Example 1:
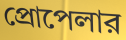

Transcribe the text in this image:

প্রোপেলার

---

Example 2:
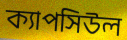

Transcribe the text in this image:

ক্যাপসিউল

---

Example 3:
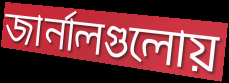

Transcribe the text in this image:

জার্নালগুলোয়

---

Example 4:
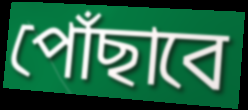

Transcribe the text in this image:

পোঁছাবে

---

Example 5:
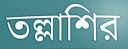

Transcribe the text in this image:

তল্লাশির